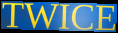
TWICE